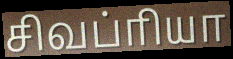
சிவப்ரியா